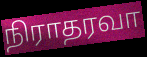
நிராதரவா